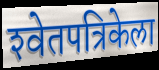
श्वेतपत्रिकेला